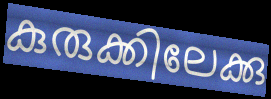
കുരുക്കിലേക്കു